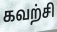
கவற்சி